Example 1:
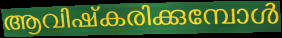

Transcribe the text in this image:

ആവിഷ്‌കരിക്കുമ്പോൾ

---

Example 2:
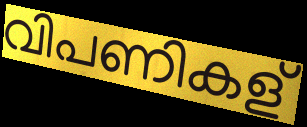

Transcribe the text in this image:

വിപണികള്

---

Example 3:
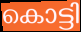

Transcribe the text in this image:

കൊട്ടി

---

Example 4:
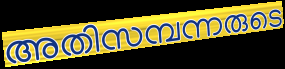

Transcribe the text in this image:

അതിസമ്പന്നരുടെ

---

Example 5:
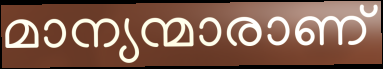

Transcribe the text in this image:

മാന്യന്മാരാണ്